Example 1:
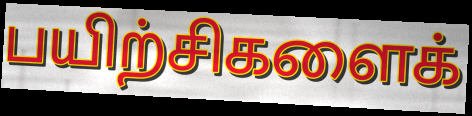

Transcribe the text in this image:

பயிற்சிகளைக்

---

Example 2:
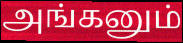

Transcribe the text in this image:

அங்கனும்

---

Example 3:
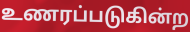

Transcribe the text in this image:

உணரப்படுகின்ற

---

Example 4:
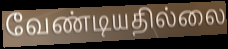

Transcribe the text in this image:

வேண்டியதில்லை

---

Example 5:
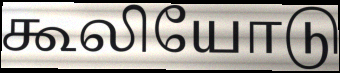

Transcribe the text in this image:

கூலியோடு